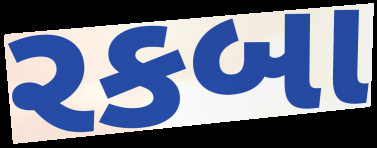
રકબા